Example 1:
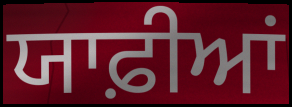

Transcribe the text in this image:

ਯਾਫ਼ੀਆਂ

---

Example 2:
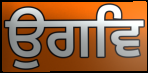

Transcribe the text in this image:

ਉਗਵਿ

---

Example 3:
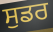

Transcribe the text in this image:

ਸੁਡਰ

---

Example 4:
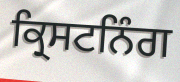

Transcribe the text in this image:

ਕ੍ਰਿਸਟਨਿੰਗ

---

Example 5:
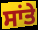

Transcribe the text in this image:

ਸਾਂਤੇ